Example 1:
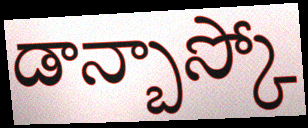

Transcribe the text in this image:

డాన్బాస్కో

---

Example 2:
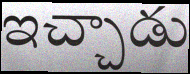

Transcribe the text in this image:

ఇచ్చాడు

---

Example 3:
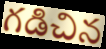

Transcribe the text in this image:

గడిచిన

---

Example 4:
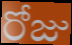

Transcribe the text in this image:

రోజు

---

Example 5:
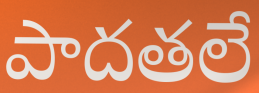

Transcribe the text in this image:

పాదతలే